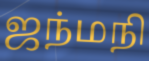
ஜந்மநி